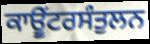
ਕਾਊਂਟਰਸੰਤੁਲਨ